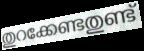
തുറക്കേണ്ടതുണ്ട്